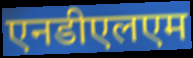
एनडीएलएम